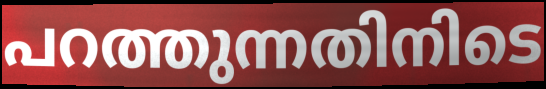
പറത്തുന്നതിനിടെ